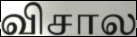
விசால